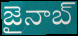
జైనాబ్